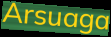
Arsuaga